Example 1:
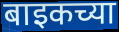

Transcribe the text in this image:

बाइकच्या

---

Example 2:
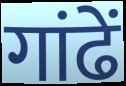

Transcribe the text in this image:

गांढें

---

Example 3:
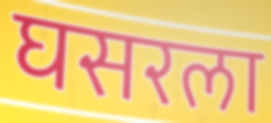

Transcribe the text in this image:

घसरला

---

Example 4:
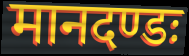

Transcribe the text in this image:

मानदण्डः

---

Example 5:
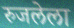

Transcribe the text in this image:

रुजलेला